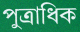
পুত্রাধিক